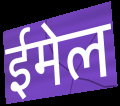
ईमेल